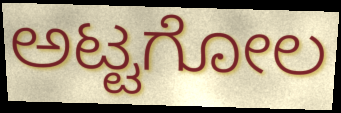
ಅಟ್ಟಗೋಲ